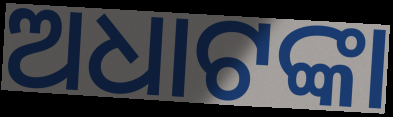
ଅଧାଟଙ୍କା